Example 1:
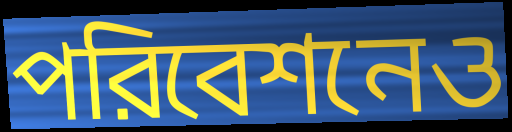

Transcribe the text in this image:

পরিবেশনেও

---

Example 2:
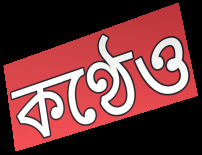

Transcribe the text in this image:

কণ্ঠেও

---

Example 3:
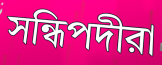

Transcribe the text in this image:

সন্ধিপদীরা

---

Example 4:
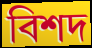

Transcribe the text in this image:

বিশদ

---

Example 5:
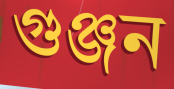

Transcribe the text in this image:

গুঞ্জন